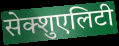
सेक्शुएलिटी